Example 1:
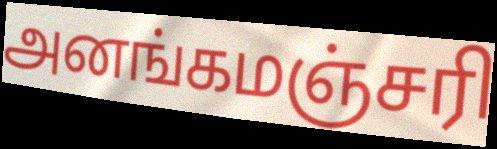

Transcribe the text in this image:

அனங்கமஞ்சரி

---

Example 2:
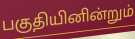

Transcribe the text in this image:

பகுதியினின்றும்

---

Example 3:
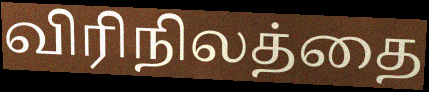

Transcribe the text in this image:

விரிநிலத்தை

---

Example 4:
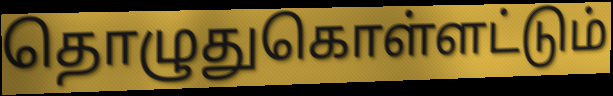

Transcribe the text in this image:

தொழுதுகொள்ளட்டும்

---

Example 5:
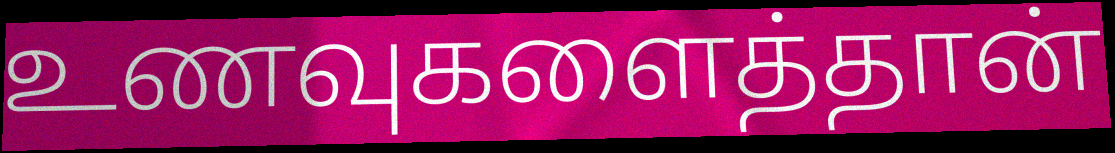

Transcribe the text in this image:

உணவுகளைத்தான்